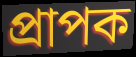
প্ৰাপক